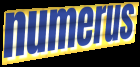
numerus